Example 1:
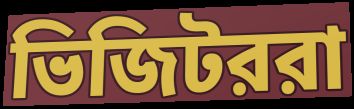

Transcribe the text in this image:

ভিজিটররা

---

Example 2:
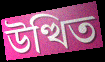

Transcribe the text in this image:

উত্থিত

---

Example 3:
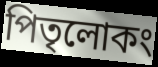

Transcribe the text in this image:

পিতৃলোকং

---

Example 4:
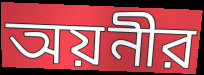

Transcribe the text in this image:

অয়নীর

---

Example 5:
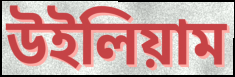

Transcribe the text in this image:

উইলিয়াম